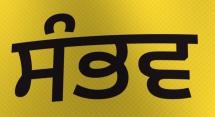
ਸੰਭਵ